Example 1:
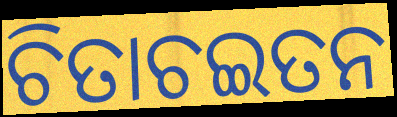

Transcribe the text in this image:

ଚିତାଚଇତନ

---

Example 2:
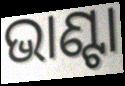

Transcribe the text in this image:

ଭାଣ୍ଟା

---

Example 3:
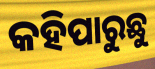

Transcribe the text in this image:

କହିପାରୁଛୁ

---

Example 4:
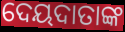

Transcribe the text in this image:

ଦେୟଦାତାଙ୍କ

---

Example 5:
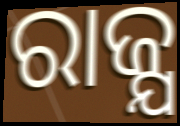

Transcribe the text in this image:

ରାଜ୍ଯ